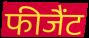
फीजैंट